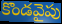
కొండవైపు